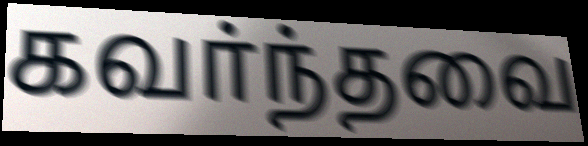
கவர்ந்தவை